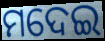
ମଦେଇ